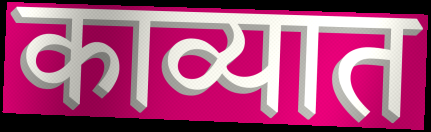
काव्यात